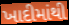
ખાદીમાંથી